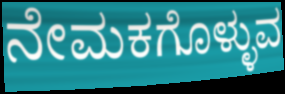
ನೇಮಕಗೊಳ್ಳುವ